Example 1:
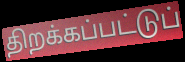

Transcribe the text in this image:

திறக்கப்பட்டுப்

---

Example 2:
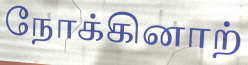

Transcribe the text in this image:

நோக்கினாற்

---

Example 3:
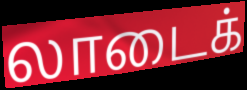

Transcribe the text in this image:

லாடைக்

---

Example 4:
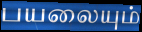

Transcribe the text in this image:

பயலையும்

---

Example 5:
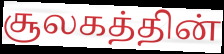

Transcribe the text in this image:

சூலகத்தின்